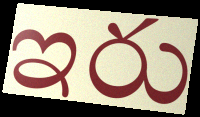
ఇరు